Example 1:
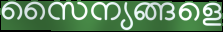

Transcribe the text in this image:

സൈന്യങ്ങളെ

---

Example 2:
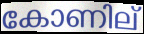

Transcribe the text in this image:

കോണില്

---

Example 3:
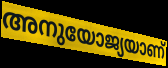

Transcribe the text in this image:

അനുയോജ്യയാണ്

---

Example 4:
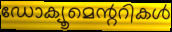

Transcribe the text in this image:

ഡോക്യൂമെന്ററികൾ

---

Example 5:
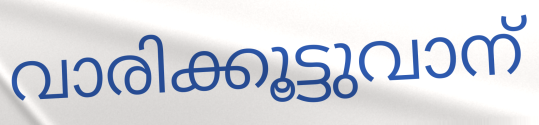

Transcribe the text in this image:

വാരിക്കൂട്ടുവാന്